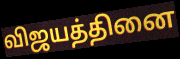
விஜயத்தினை